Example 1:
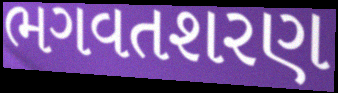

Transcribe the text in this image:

ભગવતશરણ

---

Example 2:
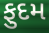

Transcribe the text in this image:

ફુદમ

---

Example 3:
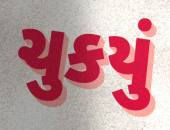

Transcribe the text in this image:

ચુકયું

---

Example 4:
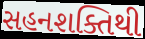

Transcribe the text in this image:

સહનશક્તિથી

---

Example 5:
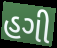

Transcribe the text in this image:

હગી